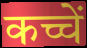
कच्चें